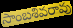
సాంబశివరావు